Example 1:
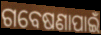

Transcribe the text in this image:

ଗବେଷଣାପାଇଁ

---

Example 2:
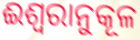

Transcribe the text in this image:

ଈଶ୍ଵରାନୁକୂଳ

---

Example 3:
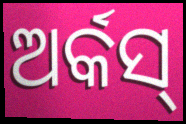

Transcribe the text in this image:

ଅର୍କସ୍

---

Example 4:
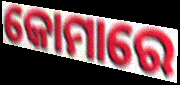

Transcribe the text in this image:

କୋମାରେ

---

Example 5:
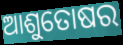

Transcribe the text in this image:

ଆଶୁତୋଷର